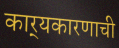
कार्यकारणाची